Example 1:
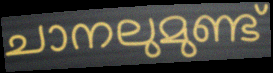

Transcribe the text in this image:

ചാനലുമുണ്ട്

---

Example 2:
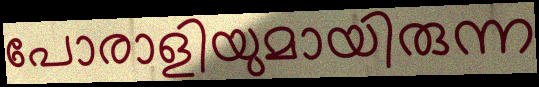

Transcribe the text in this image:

പോരാളിയുമായിരുന്ന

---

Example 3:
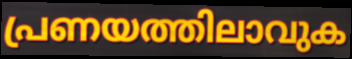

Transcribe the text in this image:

പ്രണയത്തിലാവുക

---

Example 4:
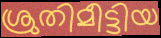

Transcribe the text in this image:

ശ്രുതിമീട്ടിയ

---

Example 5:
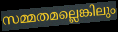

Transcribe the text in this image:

സമ്മതമല്ലെങ്കിലും